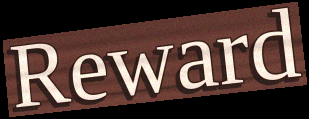
Reward